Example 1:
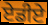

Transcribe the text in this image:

ਏਡੀਏ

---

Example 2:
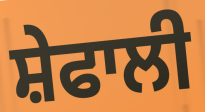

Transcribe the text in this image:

ਸ਼ੇਫਾਲੀ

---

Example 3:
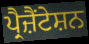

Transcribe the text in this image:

ਪ੍ਰੈਜ਼ੈਂਟੇਸ਼ਨ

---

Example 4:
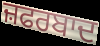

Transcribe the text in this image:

ਜ਼ਫਰਬਾਦ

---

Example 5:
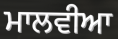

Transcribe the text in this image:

ਮਾਲਵੀਆ